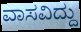
ವಾಸವಿದ್ದು